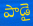
పాడై